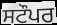
ਸਟੌਪਰ